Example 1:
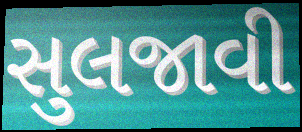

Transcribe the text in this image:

સુલજાવી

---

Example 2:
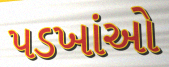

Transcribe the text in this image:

પડખાંઓ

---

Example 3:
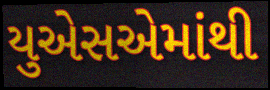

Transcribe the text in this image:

યુએસએમાંથી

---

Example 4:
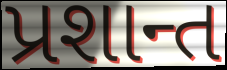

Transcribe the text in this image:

પ્રશાન્ત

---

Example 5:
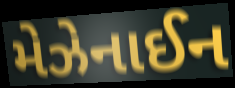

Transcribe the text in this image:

મેઝેનાઈન